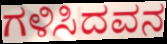
ಗಳಿಸಿದವನ